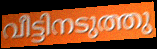
വീട്ടിനടുത്തു